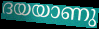
ദയയാണു